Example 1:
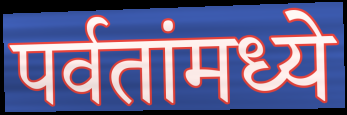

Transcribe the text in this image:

पर्वतांमध्ये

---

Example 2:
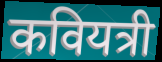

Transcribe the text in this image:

कवियत्री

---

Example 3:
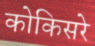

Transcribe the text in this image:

कोकिसरे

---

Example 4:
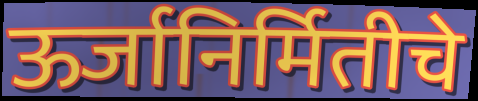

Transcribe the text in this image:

ऊर्जानिर्मितीचे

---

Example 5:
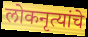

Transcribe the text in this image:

लोकनृत्यांचे